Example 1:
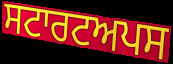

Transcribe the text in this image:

ਸਟਾਰਟਅਪਸ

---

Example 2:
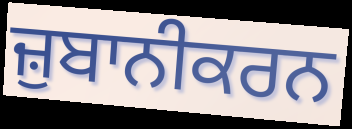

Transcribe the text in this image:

ਜ਼ੁਬਾਨੀਕਰਨ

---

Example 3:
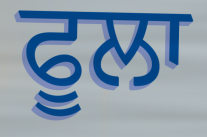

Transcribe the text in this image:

ਫੂਲਾ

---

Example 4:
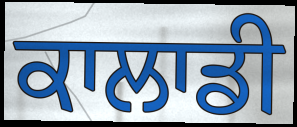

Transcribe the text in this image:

ਕਾਲਾਡੀ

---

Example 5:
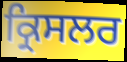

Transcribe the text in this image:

ਕ੍ਰਿਸਲਰ